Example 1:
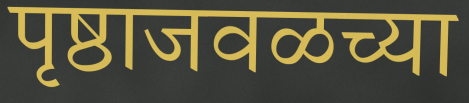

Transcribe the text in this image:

पृष्ठाजवळच्या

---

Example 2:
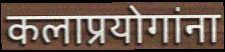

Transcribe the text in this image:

कलाप्रयोगांना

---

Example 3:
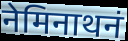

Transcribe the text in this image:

नेमिनाथनं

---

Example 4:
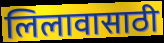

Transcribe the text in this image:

लिलावासाठी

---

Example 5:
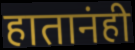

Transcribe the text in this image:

हातानंही